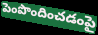
పెంపొందించడంపై